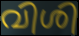
വിശി